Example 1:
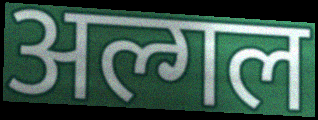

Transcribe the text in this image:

अल्गल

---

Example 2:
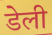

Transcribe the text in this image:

डेली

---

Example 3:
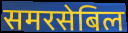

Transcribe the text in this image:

समरसेबिल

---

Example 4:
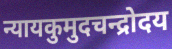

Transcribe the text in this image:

न्यायकुमुदचन्द्रोदय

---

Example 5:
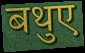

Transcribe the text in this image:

बथुए